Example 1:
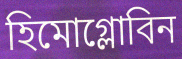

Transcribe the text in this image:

হিমোগ্লোবিন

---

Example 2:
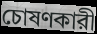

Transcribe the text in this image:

চোষণকারী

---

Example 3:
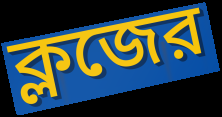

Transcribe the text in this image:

ক্লজের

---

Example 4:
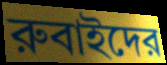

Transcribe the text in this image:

রুবাইদের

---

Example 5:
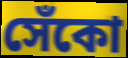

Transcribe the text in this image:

সেঁকো